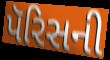
પૅરિસની